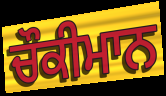
ਚੌਕੀਮਾਨ